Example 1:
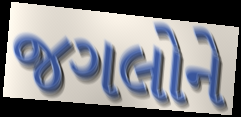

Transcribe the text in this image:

જગલોને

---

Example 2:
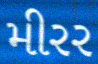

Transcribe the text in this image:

મીરર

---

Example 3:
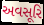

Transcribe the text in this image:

અવસૂરિ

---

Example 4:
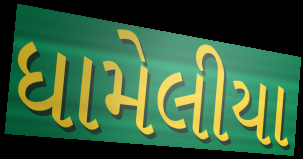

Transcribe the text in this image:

ધામેલીયા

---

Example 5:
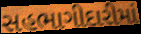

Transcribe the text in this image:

સહભાગીદારીમાં